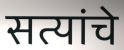
सत्यांचे